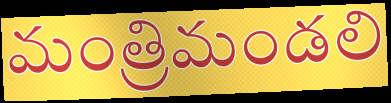
మంత్రిమండలి